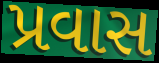
પ્રવાસ